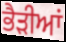
ਭੈੜੀਆਂ